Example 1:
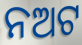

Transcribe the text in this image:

ନଅଟ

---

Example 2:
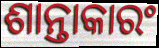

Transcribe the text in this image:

ଶାନ୍ତାକାରଂ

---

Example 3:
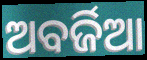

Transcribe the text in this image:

ଅବର୍ଜିଆ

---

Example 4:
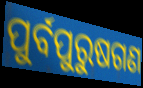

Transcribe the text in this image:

ପୁର୍ବପୁରୁଷଗଣ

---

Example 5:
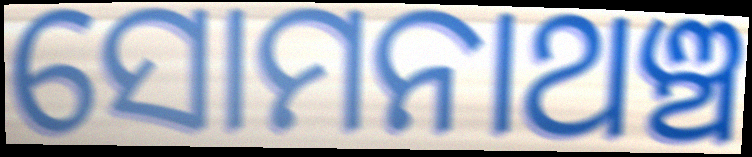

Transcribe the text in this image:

ସୋମନାଥଞ୍ଚ